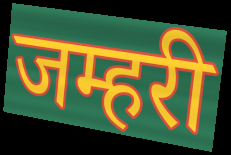
जम्हरी